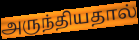
அருந்தியதால்